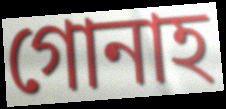
গোনাহ